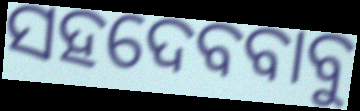
ସହଦେବବାବୁ